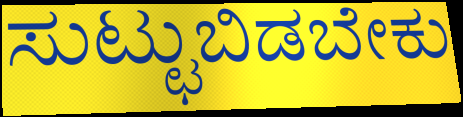
ಸುಟ್ಟುಬಿಡಬೇಕು